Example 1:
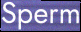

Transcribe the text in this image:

Sperm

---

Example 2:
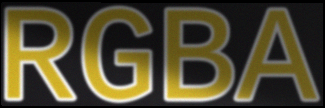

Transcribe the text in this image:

RGBA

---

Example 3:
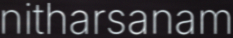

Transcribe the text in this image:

nitharsanam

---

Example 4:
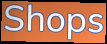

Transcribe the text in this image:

Shops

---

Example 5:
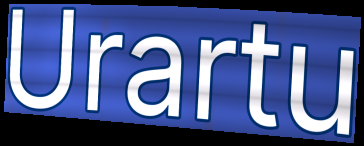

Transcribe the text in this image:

Urartu